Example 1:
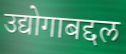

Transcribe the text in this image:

उद्योगाबद्दल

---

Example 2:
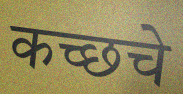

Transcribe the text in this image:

कच्छचे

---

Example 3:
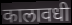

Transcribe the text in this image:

कालावधी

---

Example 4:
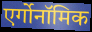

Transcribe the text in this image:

एर्गोनॉमिक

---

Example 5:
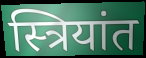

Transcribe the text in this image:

स्त्रियांत